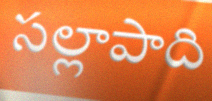
సల్లాపాది